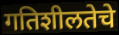
गतिशीलतेचे